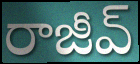
రాజీవ్